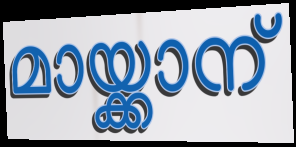
മായ്ക്കാന്